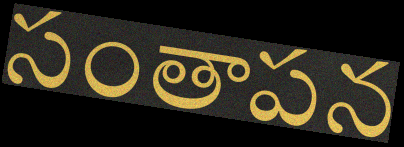
సంతాపన